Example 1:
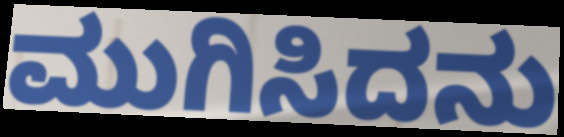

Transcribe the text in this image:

ಮುಗಿಸಿದನು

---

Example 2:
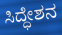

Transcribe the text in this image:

ಸಿದ್ಧೇಶನ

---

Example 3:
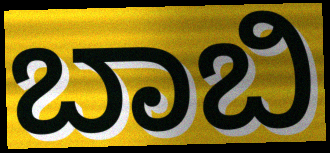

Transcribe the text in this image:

ಬಾಬಿ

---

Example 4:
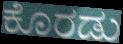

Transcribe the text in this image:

ಕೊರಡು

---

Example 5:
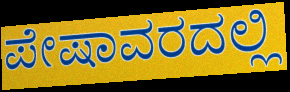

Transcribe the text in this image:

ಪೇಷಾವರದಲ್ಲಿ